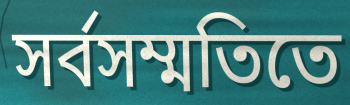
সর্বসম্মতিতে